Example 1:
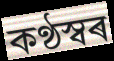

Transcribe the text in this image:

কণ্ঠস্বৰ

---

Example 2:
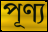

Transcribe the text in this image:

পূণ্য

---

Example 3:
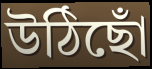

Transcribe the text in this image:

উঠিছোঁ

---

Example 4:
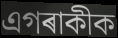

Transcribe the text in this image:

এগৰাকীক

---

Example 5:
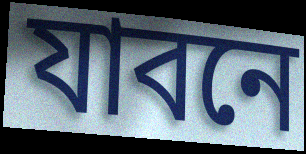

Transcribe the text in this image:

যাবনে